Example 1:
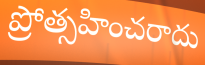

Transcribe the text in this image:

ప్రోత్సహించరాదు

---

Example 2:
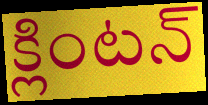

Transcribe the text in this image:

క్లింటన్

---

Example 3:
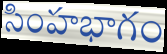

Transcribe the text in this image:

సింహభాగం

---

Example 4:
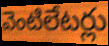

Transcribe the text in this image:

వెంటిలేటర్లు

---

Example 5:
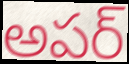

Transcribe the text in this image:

అపర్